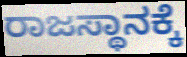
ರಾಜಸ್ಥಾನಕ್ಕೆ